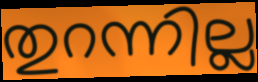
തുറന്നില്ല